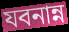
যবনান্ন